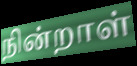
நின்றாள்